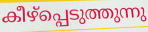
കീഴ്പ്പെടുത്തുന്നു